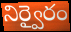
నిర్వైరం